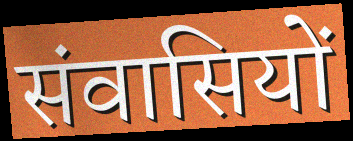
संवासियों